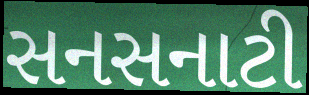
સનસનાટી